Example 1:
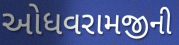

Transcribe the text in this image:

ઓધવરામજીની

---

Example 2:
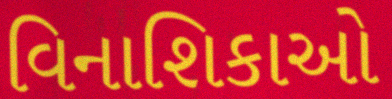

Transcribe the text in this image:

વિનાશિકાઓ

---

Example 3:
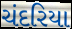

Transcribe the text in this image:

ચંદરિયા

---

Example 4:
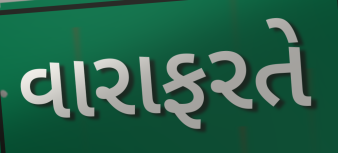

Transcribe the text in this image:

વારાફરતે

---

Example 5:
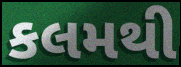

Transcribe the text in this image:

કલમથી